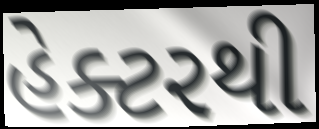
હેક્ટરથી